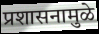
प्रशासनामुळे